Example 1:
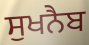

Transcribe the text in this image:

ਸੁਖਨੈਬ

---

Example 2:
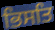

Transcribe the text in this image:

ਭਿਸਤਿ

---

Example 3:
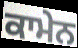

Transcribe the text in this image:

ਕਾਮੇਨ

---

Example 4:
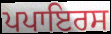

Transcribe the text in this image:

ਪਪਾਇਰਸ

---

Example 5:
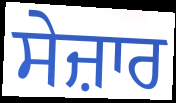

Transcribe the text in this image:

ਸੇਜ਼ਾਰ